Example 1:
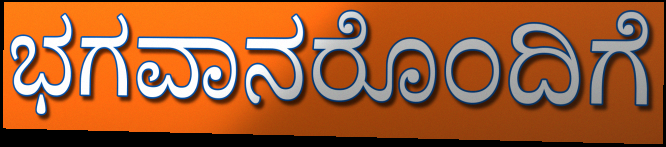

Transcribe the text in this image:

ಭಗವಾನರೊಂದಿಗೆ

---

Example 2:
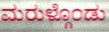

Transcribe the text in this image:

ಮರುಳ್ಗೊಂಡು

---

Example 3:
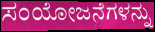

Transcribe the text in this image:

ಸಂಯೋಜನೆಗಳನ್ನು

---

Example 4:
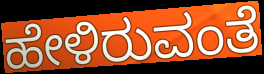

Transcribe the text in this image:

ಹೇಳಿರುವಂತೆ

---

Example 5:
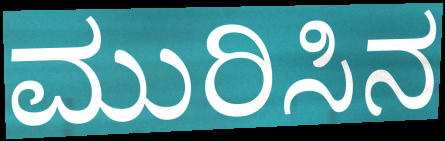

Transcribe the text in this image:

ಮುರಿಸಿನ